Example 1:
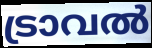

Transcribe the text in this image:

ട്രാവൽ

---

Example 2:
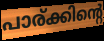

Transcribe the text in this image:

പാര്ക്കിന്റെ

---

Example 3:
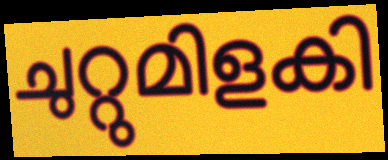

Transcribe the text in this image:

ചുറ്റുമിളകി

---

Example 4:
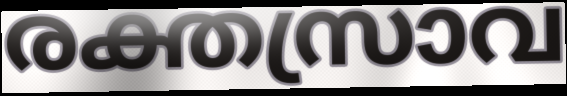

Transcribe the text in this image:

രക്തസ്രാവ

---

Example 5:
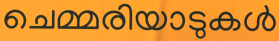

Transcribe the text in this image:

ചെമ്മരിയാടുകൾ